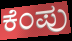
ಕೆಂಪು